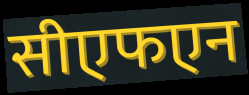
सीएफएन